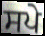
ਸਪੇ